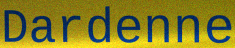
Dardenne